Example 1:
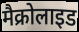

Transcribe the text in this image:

मैक्रोलाइड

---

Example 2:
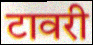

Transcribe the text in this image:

टावरी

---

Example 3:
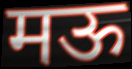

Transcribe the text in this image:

मऊ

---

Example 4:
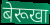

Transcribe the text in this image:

बेरूखा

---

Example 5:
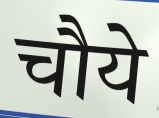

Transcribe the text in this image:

चौये